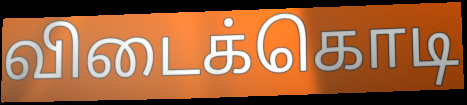
விடைக்கொடி